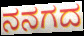
ನನಗದ